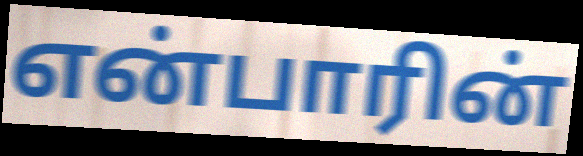
என்பாரின்